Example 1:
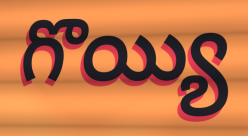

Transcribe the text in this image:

గొయ్యి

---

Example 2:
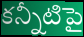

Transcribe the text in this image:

కన్నీటిపై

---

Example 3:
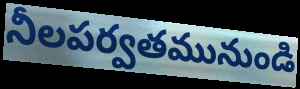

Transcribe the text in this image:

నీలపర్వతమునుండి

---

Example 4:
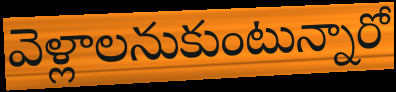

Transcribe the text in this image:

వెళ్లాలనుకుంటున్నారో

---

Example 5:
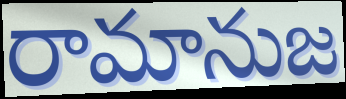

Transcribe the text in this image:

రామానుజ